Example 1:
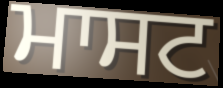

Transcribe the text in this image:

ਮਾਸਟ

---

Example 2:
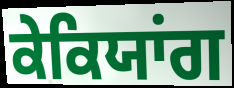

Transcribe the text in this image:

ਕੇਕਿਯਾਂਗ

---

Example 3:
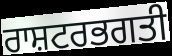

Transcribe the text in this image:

ਰਾਸ਼ਟਰਭਗਤੀ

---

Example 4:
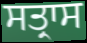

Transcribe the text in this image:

ਸਤ੍ਰਾਸ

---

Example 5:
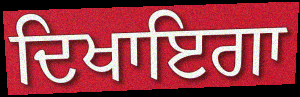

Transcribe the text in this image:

ਦਿਖਾਇਗਾ